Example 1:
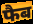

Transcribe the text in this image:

फैब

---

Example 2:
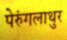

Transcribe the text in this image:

पेरुंगलाथुर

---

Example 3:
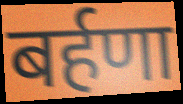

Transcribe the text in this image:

बर्हणा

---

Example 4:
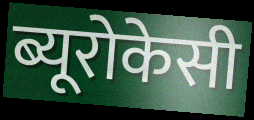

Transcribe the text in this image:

ब्यूरोकेसी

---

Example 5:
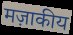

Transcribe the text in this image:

मज़ाकीय